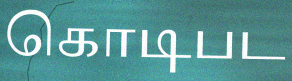
கொடிபட